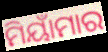
ମିୟାଁମାର